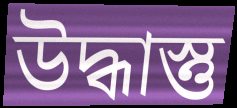
উদ্ধাস্তু